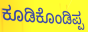
ಕೂಡಿಕೊಂಡಿಪ್ಪ